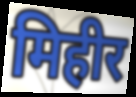
मिहीर